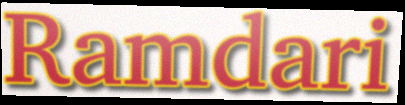
Ramdari